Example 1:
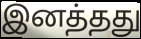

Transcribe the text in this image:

இனத்தது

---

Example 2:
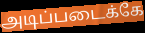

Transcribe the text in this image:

அடிப்படைக்கே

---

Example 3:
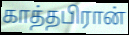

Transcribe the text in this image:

காத்தபிரான்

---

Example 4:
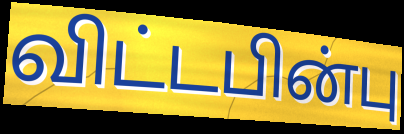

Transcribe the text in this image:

விட்டபின்பு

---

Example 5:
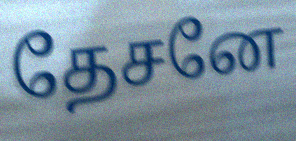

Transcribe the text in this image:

தேசனே